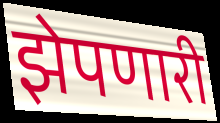
झेपणारी